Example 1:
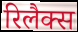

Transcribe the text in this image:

रिलैक्स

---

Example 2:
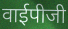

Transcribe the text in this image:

वाईपीजी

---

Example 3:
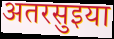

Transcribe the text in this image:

अतरसुइया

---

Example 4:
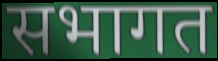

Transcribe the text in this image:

सभागत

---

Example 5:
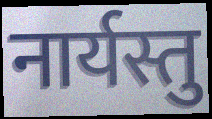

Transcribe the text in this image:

नार्यस्तु